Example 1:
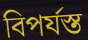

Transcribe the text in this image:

বিপর্যস্ত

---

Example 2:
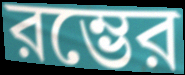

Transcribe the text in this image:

রম্ভের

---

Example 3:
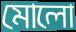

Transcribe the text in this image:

মোলো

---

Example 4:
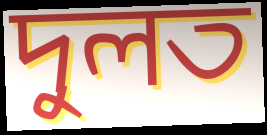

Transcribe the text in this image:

দুলত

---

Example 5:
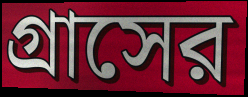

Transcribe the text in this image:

গ্রাসের